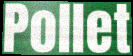
Pollet